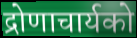
द्रोणाचार्यको